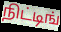
நிட்டிங்